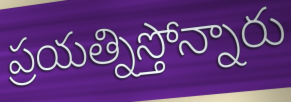
ప్రయత్నిస్తోన్నారు